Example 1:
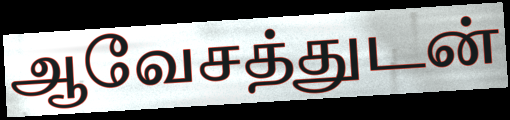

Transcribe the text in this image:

ஆவேசத்துடன்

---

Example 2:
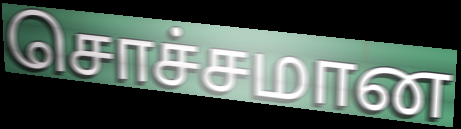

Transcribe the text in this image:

சொச்சமான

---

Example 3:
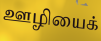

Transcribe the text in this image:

ஊழியைக்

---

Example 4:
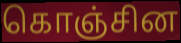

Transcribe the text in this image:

கொஞ்சின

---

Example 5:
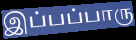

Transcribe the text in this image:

இப்பப்பாரு